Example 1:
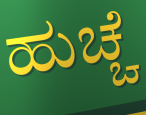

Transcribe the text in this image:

ಹುಚ್ಚೆ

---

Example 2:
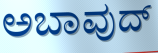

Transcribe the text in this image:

ಅಬಾವುದ್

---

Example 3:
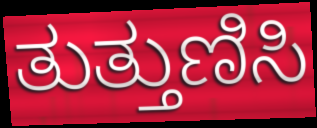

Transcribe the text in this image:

ತುತ್ತುಣಿಸಿ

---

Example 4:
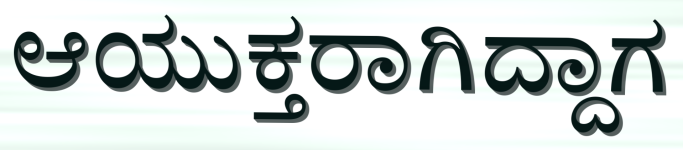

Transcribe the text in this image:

ಆಯುಕ್ತರಾಗಿದ್ದಾಗ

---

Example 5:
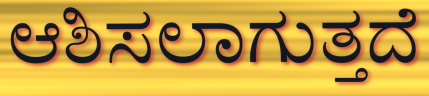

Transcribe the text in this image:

ಆಶಿಸಲಾಗುತ್ತದೆ